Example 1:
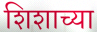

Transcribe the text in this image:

शिशाच्या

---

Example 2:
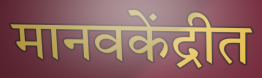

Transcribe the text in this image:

मानवकेंद्रीत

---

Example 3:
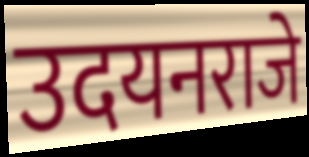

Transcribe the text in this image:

उदयनराजे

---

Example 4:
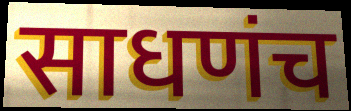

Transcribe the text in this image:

साधणंच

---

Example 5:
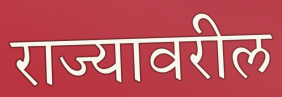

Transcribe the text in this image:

राज्यावरील